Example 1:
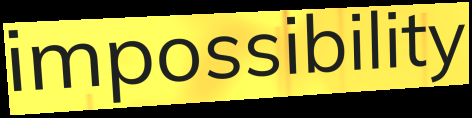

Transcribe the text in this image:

impossibility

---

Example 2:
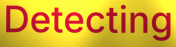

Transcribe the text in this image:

Detecting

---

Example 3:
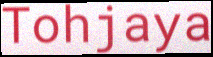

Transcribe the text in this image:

Tohjaya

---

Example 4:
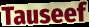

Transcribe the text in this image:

Tauseef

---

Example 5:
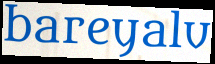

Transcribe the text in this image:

bareyalu